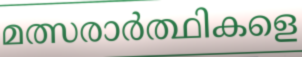
മത്സരാർത്ഥികളെ